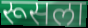
रूसला